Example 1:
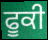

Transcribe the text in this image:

ਫੂਕੀ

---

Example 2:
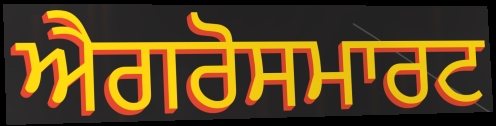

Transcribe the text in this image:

ਐਗਰੋਸਮਾਰਟ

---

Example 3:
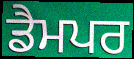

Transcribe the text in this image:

ਡੈਮਪਰ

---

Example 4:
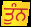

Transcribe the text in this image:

ਤੁੰਨ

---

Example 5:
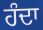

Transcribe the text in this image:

ਹੰਦਾ